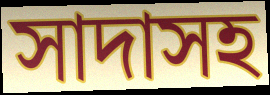
সাদাসহ